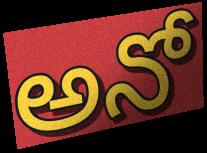
అనో